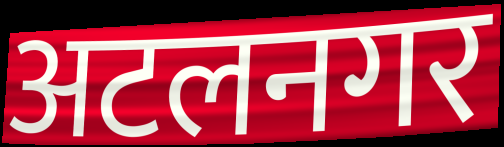
अटलनगर